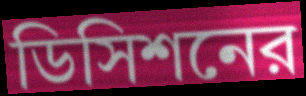
ডিসিশনের